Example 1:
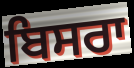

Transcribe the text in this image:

ਬਿਸਰਾ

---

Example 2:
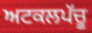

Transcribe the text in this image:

ਅਟਕਲਪੱਚੂ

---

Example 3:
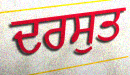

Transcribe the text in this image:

ਦਰਸੁਤ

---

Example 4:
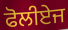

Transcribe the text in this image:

ਫੋਲੀਏਜ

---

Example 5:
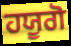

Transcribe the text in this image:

ਹਯੂਗੋ